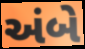
અંબે